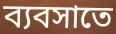
ব্যবসাতে